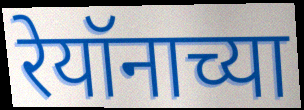
रेयॉनाच्या